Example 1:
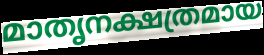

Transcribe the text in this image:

മാതൃനക്ഷത്രമായ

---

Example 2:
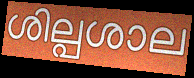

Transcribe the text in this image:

ശില്പശാല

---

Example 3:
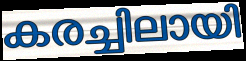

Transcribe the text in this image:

കരച്ചിലായി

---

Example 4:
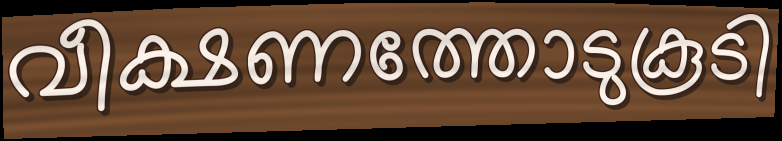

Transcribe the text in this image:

വീക്ഷണത്തോടുകൂടി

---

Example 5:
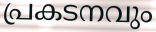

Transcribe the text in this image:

പ്രകടനവും